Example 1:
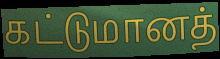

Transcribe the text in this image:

கட்டுமானத்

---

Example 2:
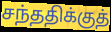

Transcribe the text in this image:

சந்ததிக்குத்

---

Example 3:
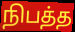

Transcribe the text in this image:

நிபத்த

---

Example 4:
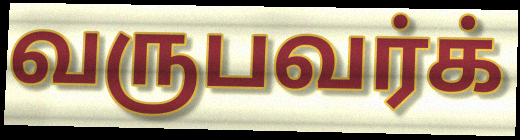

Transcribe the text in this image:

வருபவர்க்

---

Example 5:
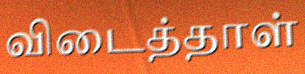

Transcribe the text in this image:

விடைத்தாள்